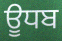
ਊਧਬ